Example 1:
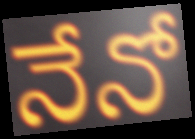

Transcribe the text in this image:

నేనో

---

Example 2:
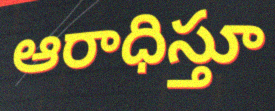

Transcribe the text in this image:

ఆరాధిస్తూ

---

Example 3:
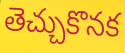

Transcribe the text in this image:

తెచ్చుకొనక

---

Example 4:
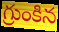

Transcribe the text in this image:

గ్రుంకిన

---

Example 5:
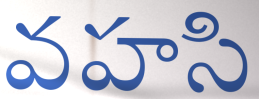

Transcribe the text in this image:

వహసి